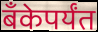
बॅंकेपर्यंत